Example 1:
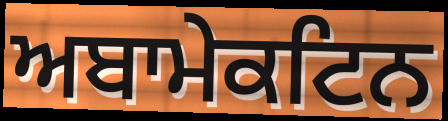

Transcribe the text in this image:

ਅਬਾਮੇਕਟਿਨ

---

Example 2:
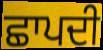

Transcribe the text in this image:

ਛਾਪਦੀ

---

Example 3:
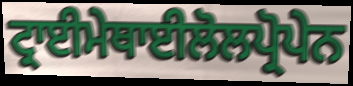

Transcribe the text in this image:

ਟ੍ਰਾਈਮੇਥਾਈਲੋਲਪ੍ਰੋਪੇਨ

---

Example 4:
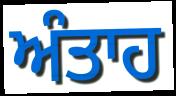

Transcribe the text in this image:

ਅੰਤਾਹ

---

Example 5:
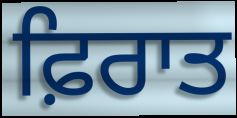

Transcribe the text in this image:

ਫ਼ਿਰਾਤ